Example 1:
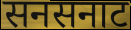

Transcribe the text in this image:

सनसनाट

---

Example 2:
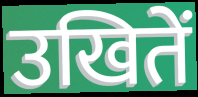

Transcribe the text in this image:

उखितें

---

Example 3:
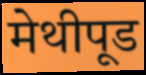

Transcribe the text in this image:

मेथीपूड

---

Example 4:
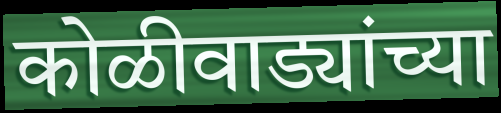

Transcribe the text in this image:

कोळीवाड्यांच्या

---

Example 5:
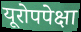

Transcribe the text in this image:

यूरोपपेक्षा